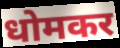
धोमकर